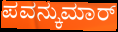
ಪವನ್ಕುಮಾರ್